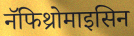
नॅफिथ्रोमाइसिन